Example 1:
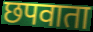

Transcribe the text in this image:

छपवाता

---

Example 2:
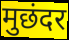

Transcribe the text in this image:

मुछंदर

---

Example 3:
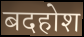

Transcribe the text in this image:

बदहोश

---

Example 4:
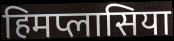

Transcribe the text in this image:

हिमप्लासिया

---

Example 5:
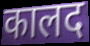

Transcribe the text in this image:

कालद